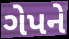
ગેપને